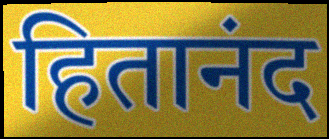
हितानंद